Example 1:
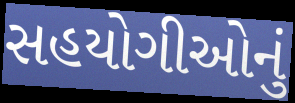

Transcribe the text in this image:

સહયોગીઓનું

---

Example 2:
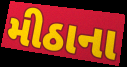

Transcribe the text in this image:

મીઠાના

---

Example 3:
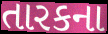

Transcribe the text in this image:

તારકના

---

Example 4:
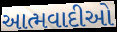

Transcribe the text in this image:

આત્મવાદીઓ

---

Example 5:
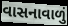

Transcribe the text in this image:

વાસનાવાળું